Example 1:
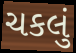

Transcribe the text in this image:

ચકલું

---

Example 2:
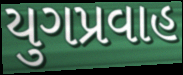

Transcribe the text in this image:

યુગપ્રવાહ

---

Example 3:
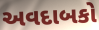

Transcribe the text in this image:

અવદાબકો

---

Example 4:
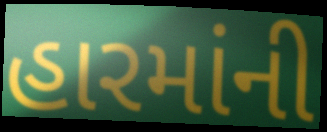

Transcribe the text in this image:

હારમાંની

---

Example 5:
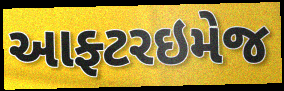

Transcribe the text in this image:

આફ્ટરઇમેજ